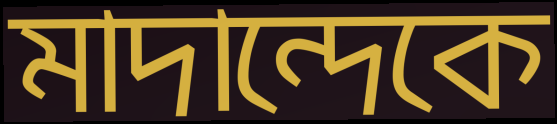
মাদান্দেকে